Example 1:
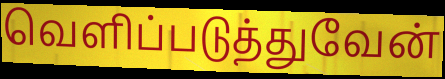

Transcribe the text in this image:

வெளிப்படுத்துவேன்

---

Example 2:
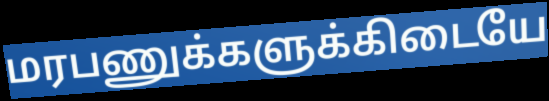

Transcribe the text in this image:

மரபணுக்களுக்கிடையே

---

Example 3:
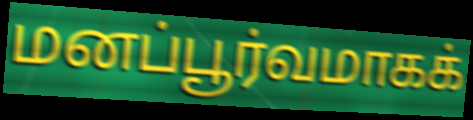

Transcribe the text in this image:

மனப்பூர்வமாகக்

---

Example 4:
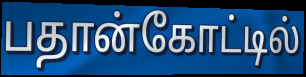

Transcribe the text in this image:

பதான்கோட்டில்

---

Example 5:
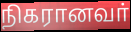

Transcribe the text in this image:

நிகரானவர்